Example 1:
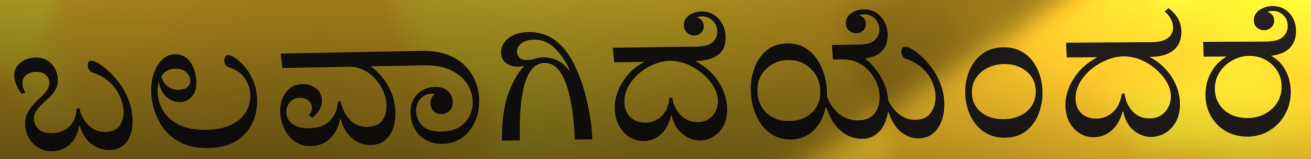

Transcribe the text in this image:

ಬಲವಾಗಿದೆಯೆಂದರೆ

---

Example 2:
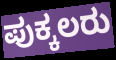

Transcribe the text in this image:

ಪುಕ್ಕಲರು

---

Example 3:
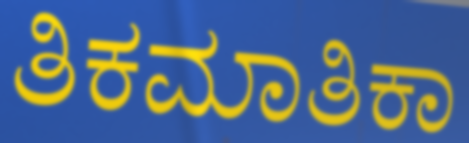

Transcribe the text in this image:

ತಿಕಮಾತಿಕಾ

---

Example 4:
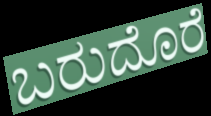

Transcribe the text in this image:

ಬರುದೊರೆ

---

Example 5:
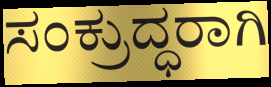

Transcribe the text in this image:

ಸಂಕ್ರುದ್ಧರಾಗಿ